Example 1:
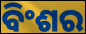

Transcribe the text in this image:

ବିଂଶର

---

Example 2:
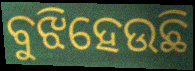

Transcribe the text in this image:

ବୁଝିହେଉଛି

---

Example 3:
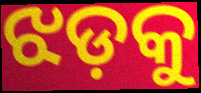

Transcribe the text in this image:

ଝଡ଼କୁ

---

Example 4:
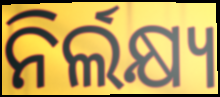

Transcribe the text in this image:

ନିର୍ଲକ୍ଷ୍ୟ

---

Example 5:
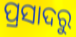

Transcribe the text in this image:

ପ୍ରସାଦରୁ